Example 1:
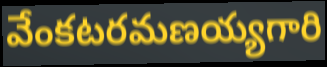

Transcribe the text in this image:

వేంకటరమణయ్యగారి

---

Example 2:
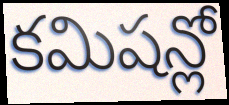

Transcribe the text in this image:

కమిషన్లో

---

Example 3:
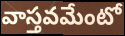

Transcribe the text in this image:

వాస్తవమేంటో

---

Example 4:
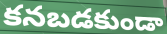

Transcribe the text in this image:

కనబడకుండా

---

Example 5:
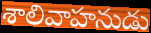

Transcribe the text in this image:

శాలివాహనుడు